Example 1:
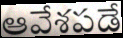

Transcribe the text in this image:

ఆవేశపడే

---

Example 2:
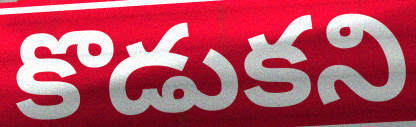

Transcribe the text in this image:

కొడుకని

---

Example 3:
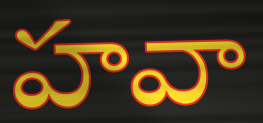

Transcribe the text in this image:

హవా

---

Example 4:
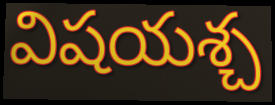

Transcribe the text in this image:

విషయశ్చ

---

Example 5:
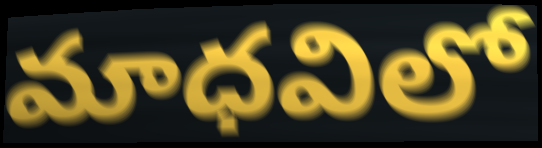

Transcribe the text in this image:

మాధవిలో